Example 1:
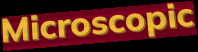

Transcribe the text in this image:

Microscopic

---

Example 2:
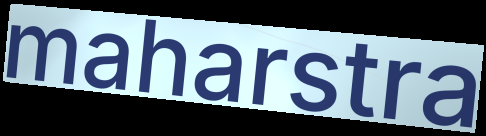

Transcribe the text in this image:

maharstra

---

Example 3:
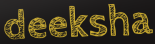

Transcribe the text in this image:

deeksha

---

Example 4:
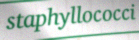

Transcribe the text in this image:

staphyllococci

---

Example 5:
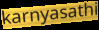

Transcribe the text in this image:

karnyasathi